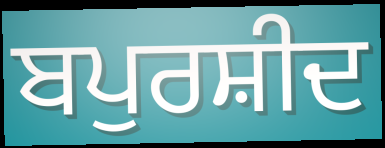
ਬਪੁਰਸ਼ੀਦ